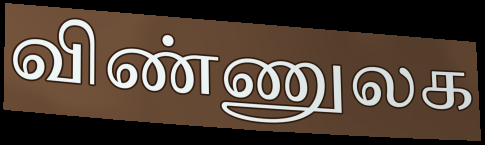
விண்ணுலக